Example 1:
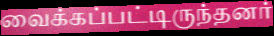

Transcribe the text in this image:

வைக்கப்பட்டிருந்தனர்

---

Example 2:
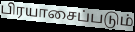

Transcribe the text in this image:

பிரயாசைப்படும்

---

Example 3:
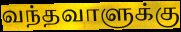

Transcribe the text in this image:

வந்தவாளுக்கு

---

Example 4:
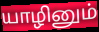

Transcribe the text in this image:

யாழினும்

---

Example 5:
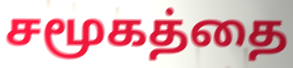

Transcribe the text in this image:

சமூகத்தை